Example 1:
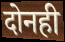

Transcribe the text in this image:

दोनही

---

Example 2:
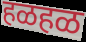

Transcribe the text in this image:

हळहळ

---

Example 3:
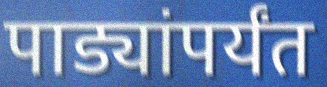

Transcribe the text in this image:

पाड्यांपर्यंत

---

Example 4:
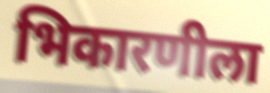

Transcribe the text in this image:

भिकारणीला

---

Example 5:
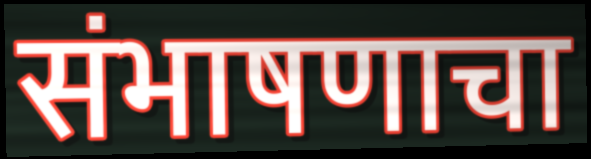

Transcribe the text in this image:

संभाषणाचा